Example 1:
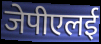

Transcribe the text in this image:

जेपीएलई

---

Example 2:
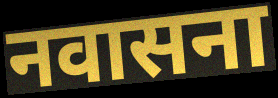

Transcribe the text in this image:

नवासना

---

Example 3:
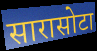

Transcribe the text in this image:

सारासोटा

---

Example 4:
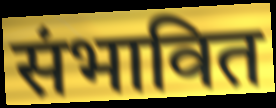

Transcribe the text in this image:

संभावित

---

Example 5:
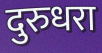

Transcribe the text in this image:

दुरुधरा